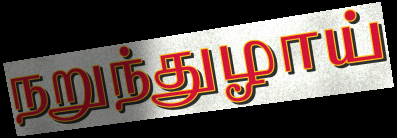
நறுந்துழாய்